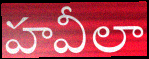
హవీలా